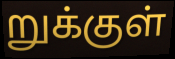
றுக்குள்